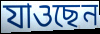
যাওছেন